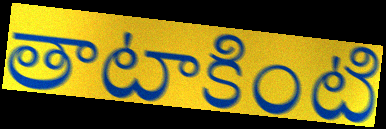
తాటాకింటి